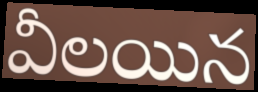
వీలయిన